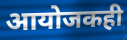
आयोजकही